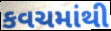
કવચમાંથી